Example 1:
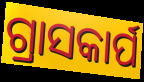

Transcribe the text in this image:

ଗ୍ରାସକାର୍ପ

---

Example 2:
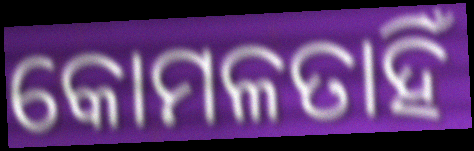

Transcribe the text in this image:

କୋମଳତାହିଁ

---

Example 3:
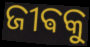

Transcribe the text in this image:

ଜୀଵକୁ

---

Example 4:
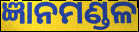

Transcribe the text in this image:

ଜ୍ଞାନମଣ୍ଡଳ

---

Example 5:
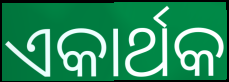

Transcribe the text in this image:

ଏକାର୍ଥକ